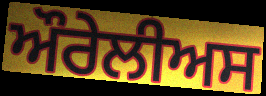
ਔਰੇਲੀਅਸ